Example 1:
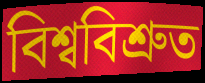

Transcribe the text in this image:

বিশ্ববিশ্ৰুত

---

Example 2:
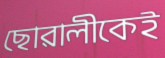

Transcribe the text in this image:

ছোৱালীকেই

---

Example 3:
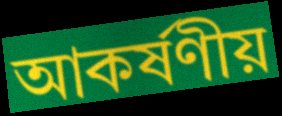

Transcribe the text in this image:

আকৰ্ষণীয়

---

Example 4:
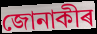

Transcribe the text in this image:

জোনাকীৰ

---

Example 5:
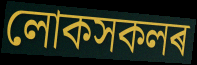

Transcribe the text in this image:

লোকসকলৰ